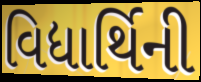
વિદ્યાર્થિની